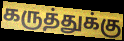
கருத்துக்கு